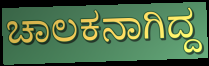
ಚಾಲಕನಾಗಿದ್ದ